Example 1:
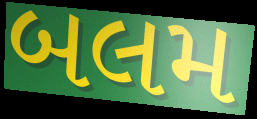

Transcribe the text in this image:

બલમ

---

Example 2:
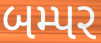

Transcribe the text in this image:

બમ્પર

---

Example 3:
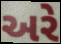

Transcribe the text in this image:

અરે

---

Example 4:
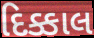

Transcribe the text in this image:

દિક્કાલ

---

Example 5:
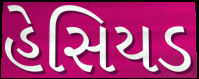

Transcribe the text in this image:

હેસિયડ